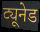
ट्यूनेड